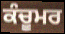
ਕੰਚੂਮਰ